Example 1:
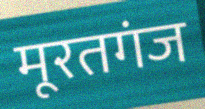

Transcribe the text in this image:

मूरतगंज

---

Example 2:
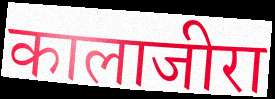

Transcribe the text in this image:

कालाजीरा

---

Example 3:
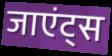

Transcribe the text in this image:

जाएंट्स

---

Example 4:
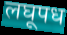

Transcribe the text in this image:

लघूपध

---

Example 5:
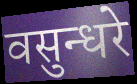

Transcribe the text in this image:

वसुन्धरे